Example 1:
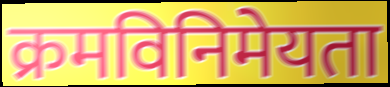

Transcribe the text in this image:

क्रमविनिमेयता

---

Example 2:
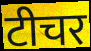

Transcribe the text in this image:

टीचर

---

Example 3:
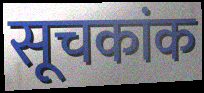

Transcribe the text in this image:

सूचकांक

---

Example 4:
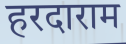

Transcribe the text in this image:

हरदाराम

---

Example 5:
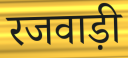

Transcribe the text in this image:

रजवाड़ी